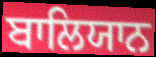
ਬਾਲਿਯਾਨ